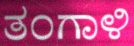
ತಂಗಾಳಿ